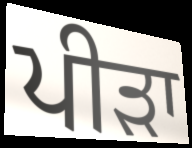
ਪੀੜਾ